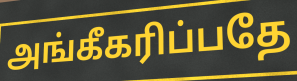
அங்கீகரிப்பதே